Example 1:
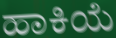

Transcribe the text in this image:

ಹಾಕಿಯೆ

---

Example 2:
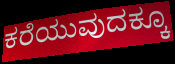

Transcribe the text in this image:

ಕರೆಯುವುದಕ್ಕೂ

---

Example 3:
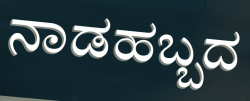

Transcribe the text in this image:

ನಾಡಹಬ್ಬದ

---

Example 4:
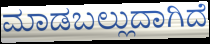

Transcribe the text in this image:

ಮಾಡಬಲ್ಲುದಾಗಿದೆ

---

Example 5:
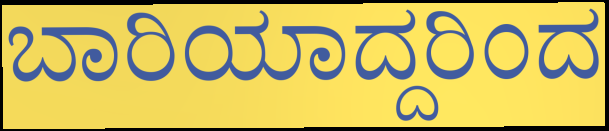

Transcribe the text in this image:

ಬಾರಿಯಾದ್ದರಿಂದ